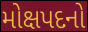
મોક્ષપદનો